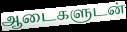
ஆடைகளுடன்